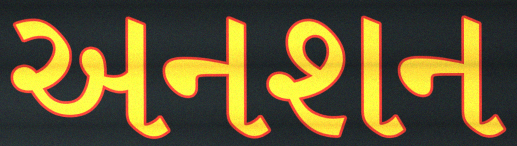
અનશન